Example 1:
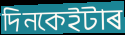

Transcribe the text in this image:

দিনকেইটাৰ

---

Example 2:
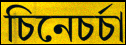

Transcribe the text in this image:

চিনেচৰ্চা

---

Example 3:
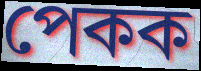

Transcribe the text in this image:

পেকক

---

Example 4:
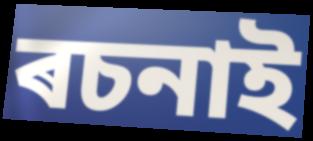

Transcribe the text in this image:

ৰচনাই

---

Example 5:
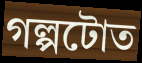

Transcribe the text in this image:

গল্পটোত